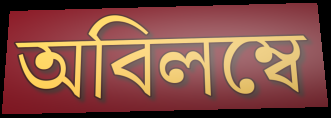
অবিলম্বে